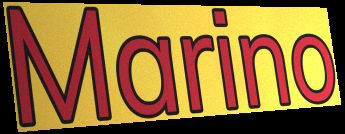
Marino